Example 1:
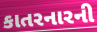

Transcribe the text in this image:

કાતરનારની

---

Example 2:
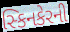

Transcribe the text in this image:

સ્કિનકેરની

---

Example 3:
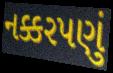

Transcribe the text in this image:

નક્કરપણું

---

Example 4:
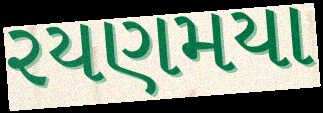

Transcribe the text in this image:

રયણમયા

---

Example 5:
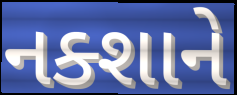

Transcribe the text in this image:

નક્શાને